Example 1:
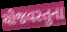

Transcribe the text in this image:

ચીજવસ્તુના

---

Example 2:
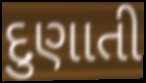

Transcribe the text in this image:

દુણાતી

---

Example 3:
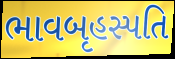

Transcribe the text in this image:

ભાવબૃહસ્પતિ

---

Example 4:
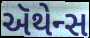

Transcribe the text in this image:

ઍથેન્સ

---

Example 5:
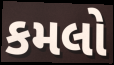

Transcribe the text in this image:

કમલો